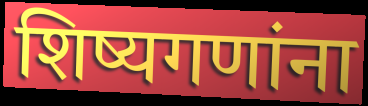
शिष्यगणांना